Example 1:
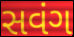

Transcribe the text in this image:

સવંગ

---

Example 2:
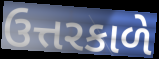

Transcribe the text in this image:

ઉત્તરકાળે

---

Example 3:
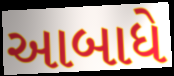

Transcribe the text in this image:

આબાધે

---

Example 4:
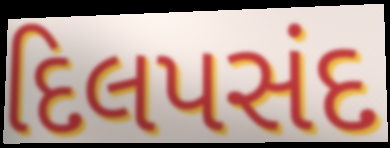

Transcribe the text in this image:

દિલપસંદ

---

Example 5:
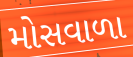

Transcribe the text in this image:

મોસવાળા